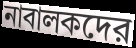
নাবালকদের